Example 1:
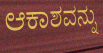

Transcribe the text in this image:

ಆಕಾಶವನ್ನು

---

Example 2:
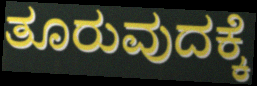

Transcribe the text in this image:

ತೂರುವುದಕ್ಕೆ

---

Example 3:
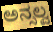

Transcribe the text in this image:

ಅನ್ಸಲ್ವ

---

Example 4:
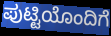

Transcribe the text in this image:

ಪುಟ್ಟಿಯೊಂದಿಗೆ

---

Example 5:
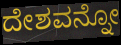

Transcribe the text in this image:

ದೇಶವನ್ನೋ